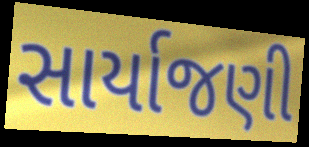
સાર્યાજણી